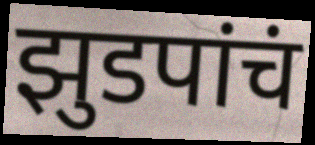
झुडपांचं